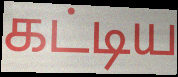
கட்டிய